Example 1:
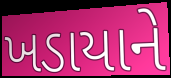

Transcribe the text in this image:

ખડાયાને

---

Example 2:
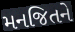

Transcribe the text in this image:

મનજિતને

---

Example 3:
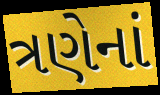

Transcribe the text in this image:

ત્રણેનાં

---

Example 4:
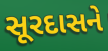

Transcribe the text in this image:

સૂરદાસને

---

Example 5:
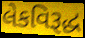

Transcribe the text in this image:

લેકવિરૂદ્ધ